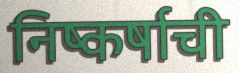
निष्कर्षाची